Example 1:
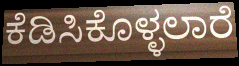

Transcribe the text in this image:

ಕೆಡಿಸಿಕೊಳ್ಳಲಾರೆ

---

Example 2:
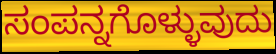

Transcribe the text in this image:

ಸಂಪನ್ನಗೊಳ್ಳುವುದು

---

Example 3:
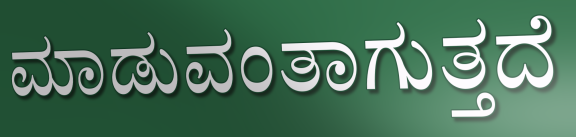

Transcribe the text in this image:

ಮಾಡುವಂತಾಗುತ್ತದೆ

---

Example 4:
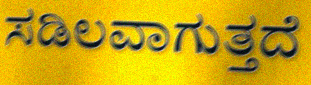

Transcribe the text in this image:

ಸಡಿಲವಾಗುತ್ತದೆ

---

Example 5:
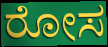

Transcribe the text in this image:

ರೋಸ